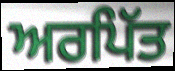
ਅਰਪਿੱਤ